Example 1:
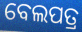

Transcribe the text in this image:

ବେଲପତ୍ର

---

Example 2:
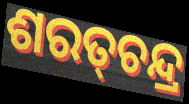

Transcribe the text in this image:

ଶରତ୍‌ଚନ୍ଦ୍ର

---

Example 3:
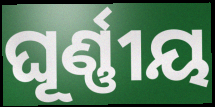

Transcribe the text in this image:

ଘୂର୍ଣ୍ଣୀୟ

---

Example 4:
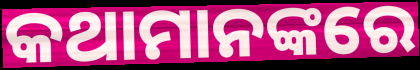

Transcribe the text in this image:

କଥାମାନଙ୍କରେ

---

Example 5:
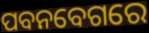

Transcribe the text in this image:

ପବନବେଗରେ